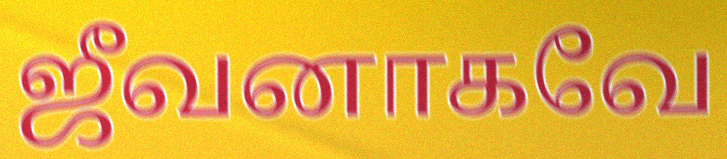
ஜீவனாகவே